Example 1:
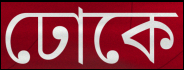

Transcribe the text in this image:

ঢোকে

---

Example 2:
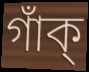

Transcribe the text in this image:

গাঁক্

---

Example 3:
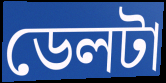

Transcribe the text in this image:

ডেলটা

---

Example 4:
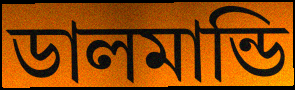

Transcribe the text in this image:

ডালমান্ডি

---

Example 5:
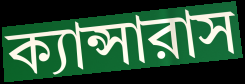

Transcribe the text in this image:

ক্যান্সারাস